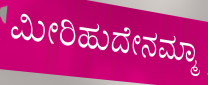
ಮೀರಿಹುದೇನಮ್ಮಾ